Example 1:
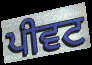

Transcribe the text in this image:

ਪੀਵਟ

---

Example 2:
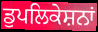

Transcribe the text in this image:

ਡੁਪਲਿਕੇਸ਼ਨਾਂ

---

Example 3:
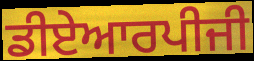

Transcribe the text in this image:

ਡੀਏਆਰਪੀਜੀ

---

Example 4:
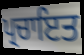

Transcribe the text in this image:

ਪ੍ਰਚਾਇਤ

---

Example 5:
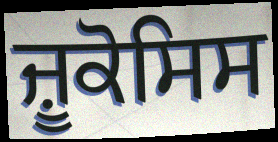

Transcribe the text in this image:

ਜ਼ੂਕੋਸਿਸ